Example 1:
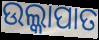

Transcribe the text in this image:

ଉଲ୍କାପାତ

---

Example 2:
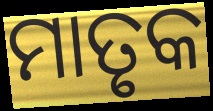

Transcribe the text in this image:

ମାତୃକ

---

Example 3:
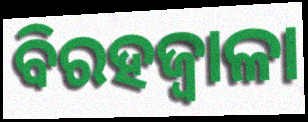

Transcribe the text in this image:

ବିରହଜ୍ୱାଳା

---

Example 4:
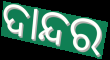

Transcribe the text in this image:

ଦାନ୍ଦର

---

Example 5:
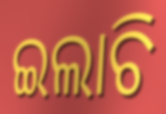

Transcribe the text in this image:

ଇଲାଚି